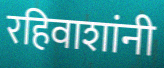
रहिवाशांनी